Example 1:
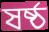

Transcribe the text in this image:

ষষ্ঠ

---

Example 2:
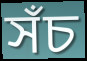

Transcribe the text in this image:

সঁচ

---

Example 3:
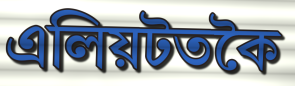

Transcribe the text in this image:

এলিয়টতকৈ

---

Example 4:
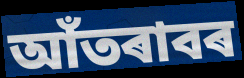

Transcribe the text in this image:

আঁতৰাবৰ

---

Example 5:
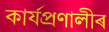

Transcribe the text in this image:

কাৰ্যপ্ৰণালীৰ